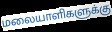
மலையாளிகளுக்கு